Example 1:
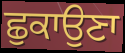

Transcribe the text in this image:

ਛੁਕਾਉਣਾ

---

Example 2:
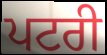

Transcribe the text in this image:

ਪਟਰੀ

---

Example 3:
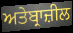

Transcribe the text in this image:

ਅਤੇਬ੍ਰਾਜ਼ੀਲ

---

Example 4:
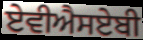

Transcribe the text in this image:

ਏਵੀਐਸਏਬੀ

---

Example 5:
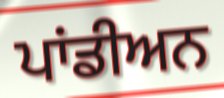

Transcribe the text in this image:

ਪਾਂਡੀਅਨ